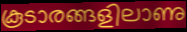
കൂടാരങ്ങളിലാണു